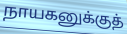
நாயகனுக்குத்